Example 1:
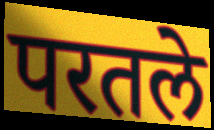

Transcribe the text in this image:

परतले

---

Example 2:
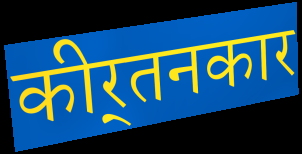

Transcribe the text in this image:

कीर्तनकार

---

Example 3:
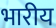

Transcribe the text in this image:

भारीय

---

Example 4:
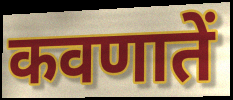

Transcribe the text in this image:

कवणातें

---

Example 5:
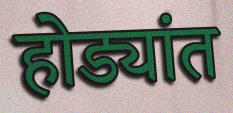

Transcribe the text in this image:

होड्यांत